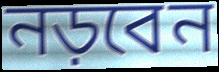
নড়বেন